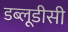
डब्लूडीसी